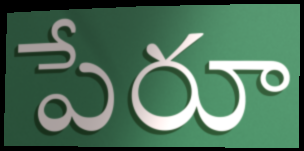
పేరూ